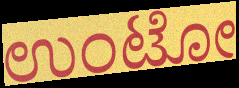
ಉಂಟೋ